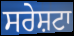
ਸਰੇਸ਼ਟਾ